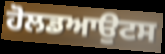
ਹੋਲਡਆਉਟਸ